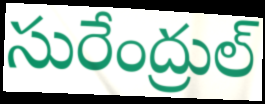
సురేంద్రుల్